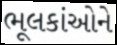
ભૂલકાંઓને